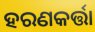
ହରଣକର୍ତ୍ତା